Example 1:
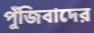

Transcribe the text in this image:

পুঁজিবাদের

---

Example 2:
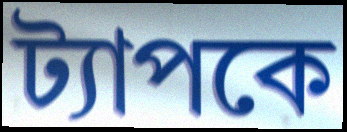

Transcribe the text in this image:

ট্যাপকে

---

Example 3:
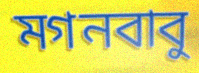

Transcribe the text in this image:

মগনবাবু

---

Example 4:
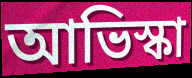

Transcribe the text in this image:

আভিস্কা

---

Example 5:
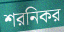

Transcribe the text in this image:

শরনিকর